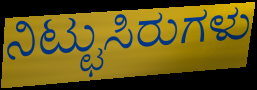
ನಿಟ್ಟುಸಿರುಗಳು